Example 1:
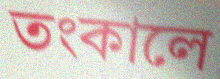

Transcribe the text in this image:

তংকালে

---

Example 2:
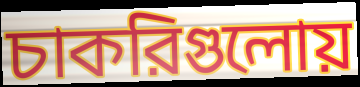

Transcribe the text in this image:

চাকরিগুলোয়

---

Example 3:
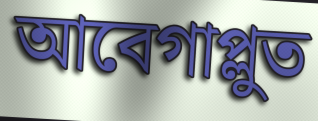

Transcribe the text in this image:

আবেগাপ্লুত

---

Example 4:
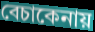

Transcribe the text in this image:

বেচাকেনায়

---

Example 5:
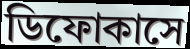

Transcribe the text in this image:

ডিফোকাসে